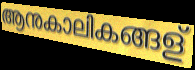
ആനുകാലികങ്ങള്